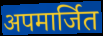
अपमार्जित